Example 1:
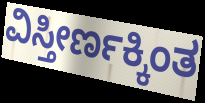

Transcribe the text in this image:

ವಿಸ್ತೀರ್ಣಕ್ಕಿಂತ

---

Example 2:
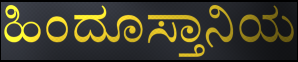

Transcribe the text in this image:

ಹಿಂದೂಸ್ತಾನಿಯ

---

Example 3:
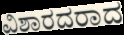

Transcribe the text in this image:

ವಿಶಾರದರಾದ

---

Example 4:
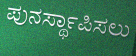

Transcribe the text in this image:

ಪುನರ್ಸ್ಥಾಪಿಸಲು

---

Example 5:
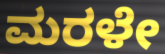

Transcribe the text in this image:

ಮರಳೇ